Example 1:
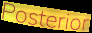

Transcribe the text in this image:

Posterior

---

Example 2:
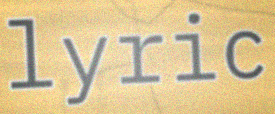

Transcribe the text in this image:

lyric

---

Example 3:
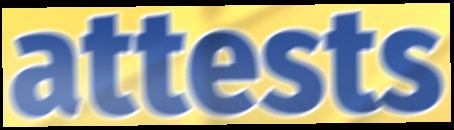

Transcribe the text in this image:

attests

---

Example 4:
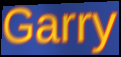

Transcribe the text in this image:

Garry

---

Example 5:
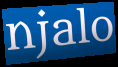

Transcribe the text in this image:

njalo